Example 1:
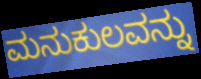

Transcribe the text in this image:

ಮನುಕುಲವನ್ನು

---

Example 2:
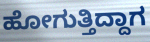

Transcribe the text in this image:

ಹೋಗುತ್ತಿದ್ದಾಗ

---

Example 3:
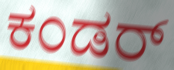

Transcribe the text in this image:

ಕಂಡರ್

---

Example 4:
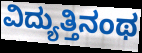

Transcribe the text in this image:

ವಿದ್ಯುತ್ತಿನಂಥ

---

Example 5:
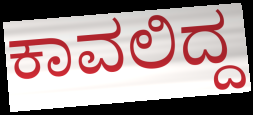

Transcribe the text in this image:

ಕಾವಲಿದ್ದ